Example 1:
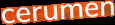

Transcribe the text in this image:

cerumen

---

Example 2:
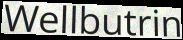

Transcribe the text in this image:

Wellbutrin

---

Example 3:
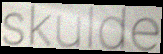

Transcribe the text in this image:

skulde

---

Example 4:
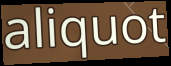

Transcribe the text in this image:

aliquot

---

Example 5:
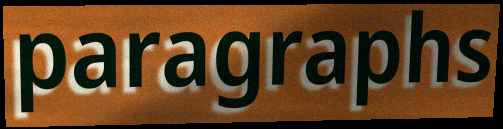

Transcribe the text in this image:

paragraphs